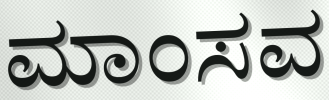
ಮಾಂಸವ